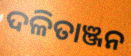
ଦଳିତାଞ୍ଜନ